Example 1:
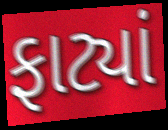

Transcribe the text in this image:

ફાટ્યાં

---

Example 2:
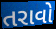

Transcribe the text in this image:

તરાવો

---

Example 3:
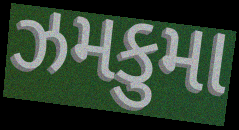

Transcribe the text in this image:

ઝમકુમા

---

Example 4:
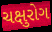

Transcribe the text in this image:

ચક્ષુરોગ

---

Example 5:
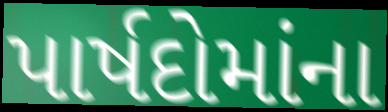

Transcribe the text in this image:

પાર્ષદોમાંના